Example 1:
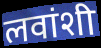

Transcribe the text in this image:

लवांशी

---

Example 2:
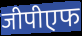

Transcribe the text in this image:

जीपीएफ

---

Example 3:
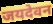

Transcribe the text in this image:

जयदेवन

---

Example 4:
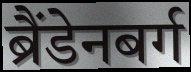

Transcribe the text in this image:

ब्रैंडेनबर्ग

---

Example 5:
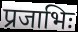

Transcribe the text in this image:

प्रजाभिः